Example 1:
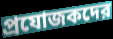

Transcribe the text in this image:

প্রযোজকদের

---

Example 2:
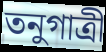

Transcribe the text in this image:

তনুগাত্রী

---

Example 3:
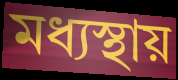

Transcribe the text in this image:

মধ্যস্থায়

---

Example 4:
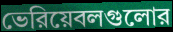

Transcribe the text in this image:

ভেরিয়েবলগুলোর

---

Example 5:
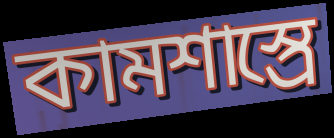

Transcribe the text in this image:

কামশাস্ত্রে